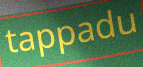
tappadu